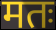
मतः